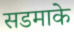
सडमाके